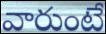
వారుంటే